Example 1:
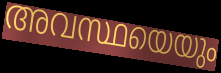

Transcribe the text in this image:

അവസ്ഥയെയും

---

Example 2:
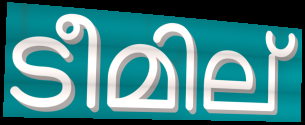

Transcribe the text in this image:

ടീമില്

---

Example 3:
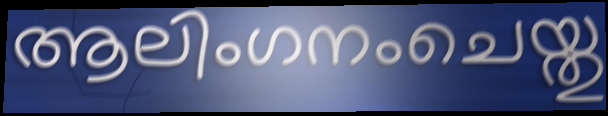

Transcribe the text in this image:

ആലിംഗനംചെയ്തു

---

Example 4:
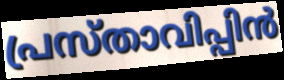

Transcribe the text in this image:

പ്രസ്താവിപ്പിൻ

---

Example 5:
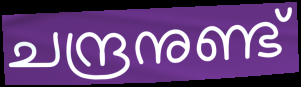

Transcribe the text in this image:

ചന്ദ്രനുണ്ട്